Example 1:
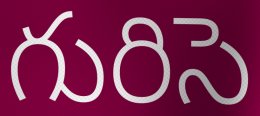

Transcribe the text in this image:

గురిసె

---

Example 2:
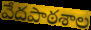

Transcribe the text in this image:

వేదపాఠశాల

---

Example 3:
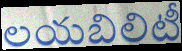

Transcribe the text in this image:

లయబిలిటీ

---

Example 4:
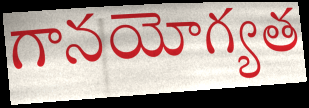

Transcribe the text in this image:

గానయోగ్యత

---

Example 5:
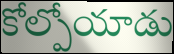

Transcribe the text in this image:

కోల్పోయాడు